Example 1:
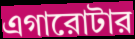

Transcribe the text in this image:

এগারোটার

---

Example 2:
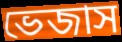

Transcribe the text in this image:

ভেজাস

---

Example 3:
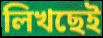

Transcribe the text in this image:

লিখছেই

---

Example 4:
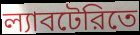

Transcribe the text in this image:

ল্যাবটেরিতে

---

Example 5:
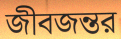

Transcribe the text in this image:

জীবজন্তর